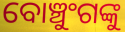
ବୋଞ୍ଚୁଂଗଙ୍କୁ